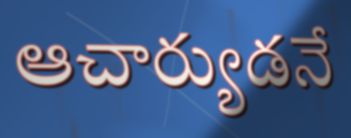
ఆచార్యుడనే